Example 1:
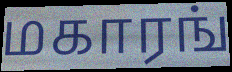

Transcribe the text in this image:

மகாரங்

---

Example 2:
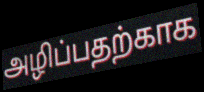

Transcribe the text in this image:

அழிப்பதற்காக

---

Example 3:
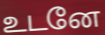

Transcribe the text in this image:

உடனே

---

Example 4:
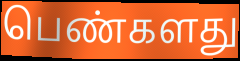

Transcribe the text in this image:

பெண்களது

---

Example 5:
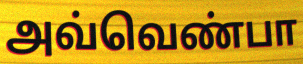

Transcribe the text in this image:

அவ்வெண்பா